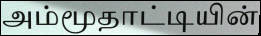
அம்மூதாட்டியின்